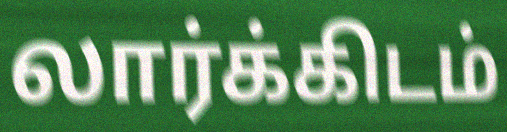
லார்க்கிடம்